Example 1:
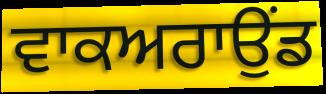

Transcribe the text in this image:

ਵਾਕਅਰਾਉਂਡ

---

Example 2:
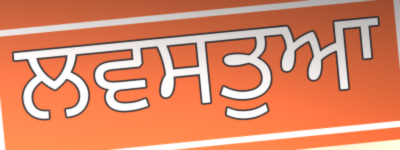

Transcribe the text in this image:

ਲਵਸਤੁਆ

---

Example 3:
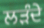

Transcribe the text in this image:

ਲੜੰਦੇ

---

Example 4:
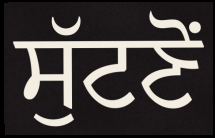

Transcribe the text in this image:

ਸੁੱਟਣੋਂ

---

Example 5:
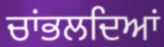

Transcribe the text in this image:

ਚਾਂਭਲਦਿਆਂ